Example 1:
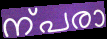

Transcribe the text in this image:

ന്പരാ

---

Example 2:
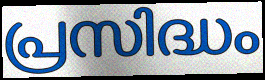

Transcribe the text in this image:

പ്രസിദ്ധം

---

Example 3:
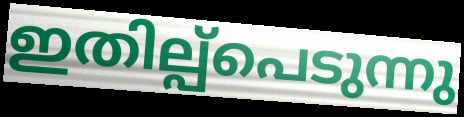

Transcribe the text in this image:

ഇതില്പ്പെടുന്നു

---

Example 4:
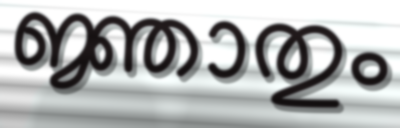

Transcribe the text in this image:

ജ്ഞാതും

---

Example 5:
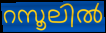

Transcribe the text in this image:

റസൂലിൽ